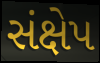
સંક્ષેપ